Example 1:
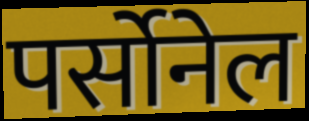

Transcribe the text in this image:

पर्सोनेल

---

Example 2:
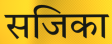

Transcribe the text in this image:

सजिका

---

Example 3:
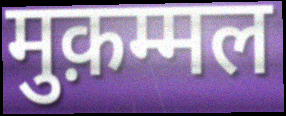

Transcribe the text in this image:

मुक़म्मल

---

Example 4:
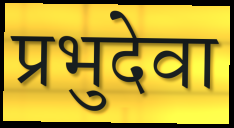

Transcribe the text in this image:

प्रभुदेवा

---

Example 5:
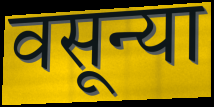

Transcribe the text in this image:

वसून्या